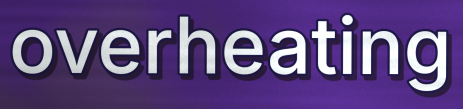
overheating